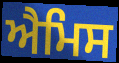
ਐਮਿਸ